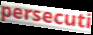
persecuti